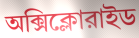
অক্সিক্লোরাইড